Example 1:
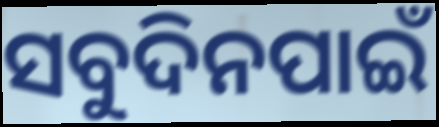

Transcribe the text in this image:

ସବୁଦିନପାଇଁ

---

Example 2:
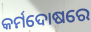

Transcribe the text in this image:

କର୍ମଦୋଷରେ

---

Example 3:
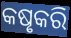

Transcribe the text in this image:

କଷୃକରି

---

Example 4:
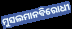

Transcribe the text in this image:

ମୁସଲମାନବିରୋଧୀ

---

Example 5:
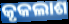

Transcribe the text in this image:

କୃକଲାଶ